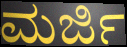
ಮರ್ಜಿ